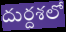
దుర్దశలో